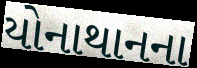
યોનાથાનના